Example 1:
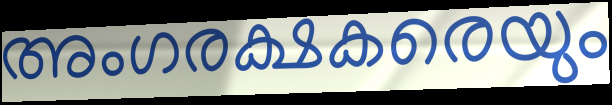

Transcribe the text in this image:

അംഗരക്ഷകരെയും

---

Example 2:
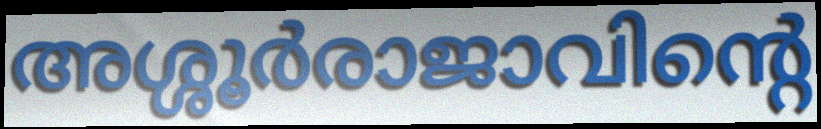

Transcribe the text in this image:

അശ്ശൂർരാജാവിന്റെ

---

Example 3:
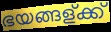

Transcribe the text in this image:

ഭയങ്ങള്ക്ക്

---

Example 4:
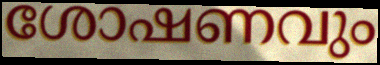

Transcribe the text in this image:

ശോഷണവും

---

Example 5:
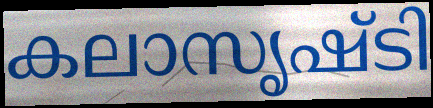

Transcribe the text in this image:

കലാസൃഷ്ടി